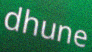
dhune